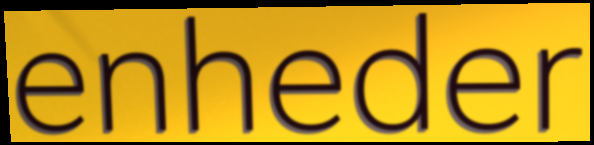
enheder